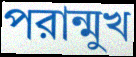
পরান্মুখ